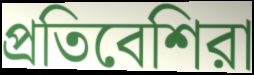
প্রতিবেশিরা